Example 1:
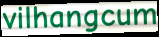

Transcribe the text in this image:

vilhangcum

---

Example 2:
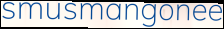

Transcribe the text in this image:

smusmangonee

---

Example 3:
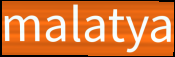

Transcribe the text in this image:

malatya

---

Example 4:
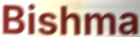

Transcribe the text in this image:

Bishma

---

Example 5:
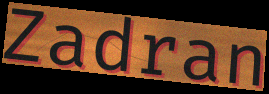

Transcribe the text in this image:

Zadran